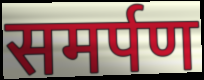
समर्पण